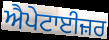
ਐਪੇਟਾਈਜ਼ਰ